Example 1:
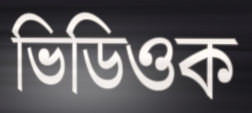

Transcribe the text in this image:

ভিডিওক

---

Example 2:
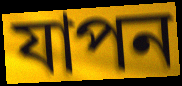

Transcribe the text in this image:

যাপন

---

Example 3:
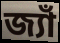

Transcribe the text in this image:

জ্যাঁ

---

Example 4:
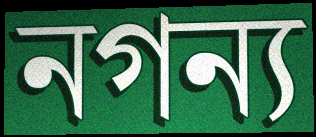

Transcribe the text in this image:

নগন্য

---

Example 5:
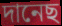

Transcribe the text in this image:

দানেছ